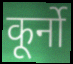
कूर्नो